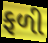
ફળી